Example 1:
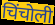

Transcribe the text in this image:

चिंचोली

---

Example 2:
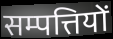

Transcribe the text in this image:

सम्‍पत्तियों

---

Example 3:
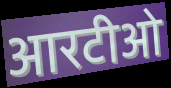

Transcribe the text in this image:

आरटीओ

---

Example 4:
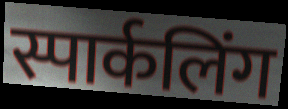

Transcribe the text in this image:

स्पार्कलिंग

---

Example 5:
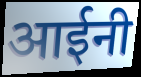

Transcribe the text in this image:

आईनी